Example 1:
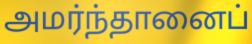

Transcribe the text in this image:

அமர்ந்தானைப்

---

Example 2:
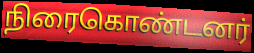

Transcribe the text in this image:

நிரைகொண்டனர்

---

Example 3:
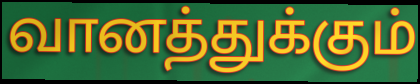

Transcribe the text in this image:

வானத்துக்கும்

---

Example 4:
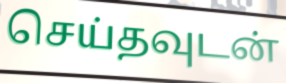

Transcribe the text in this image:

செய்தவுடன்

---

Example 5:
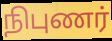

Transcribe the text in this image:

நிபுணர்